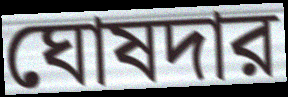
ঘোষদার